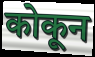
कोकून